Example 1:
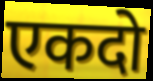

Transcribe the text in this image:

एकदो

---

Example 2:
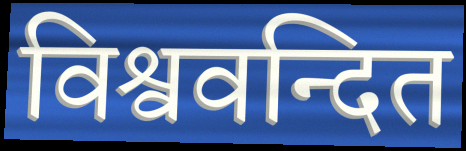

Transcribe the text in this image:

विश्ववन्दित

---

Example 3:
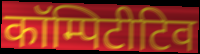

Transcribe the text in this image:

कॉम्पिटीटिव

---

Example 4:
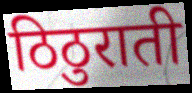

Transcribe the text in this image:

ठिठुराती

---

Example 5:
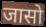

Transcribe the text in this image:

जासो